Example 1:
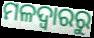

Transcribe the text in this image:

ମଳଦ୍ୱାରରୁ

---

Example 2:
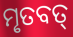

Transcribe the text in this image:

ମୃତବତ୍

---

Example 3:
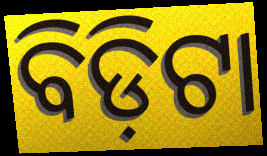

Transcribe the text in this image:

ବିଡ଼ିଟା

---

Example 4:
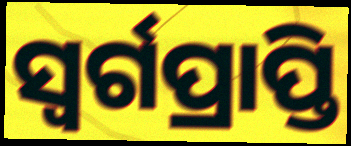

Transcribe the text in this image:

ସ୍ୱର୍ଗପ୍ରାପ୍ତି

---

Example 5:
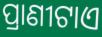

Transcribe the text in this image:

ପ୍ରାଣୀଟାଏ